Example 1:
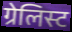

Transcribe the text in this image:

ग्रेलिस्ट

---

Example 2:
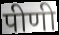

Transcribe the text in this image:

पीणी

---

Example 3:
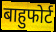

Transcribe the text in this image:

बाहुफोर्ट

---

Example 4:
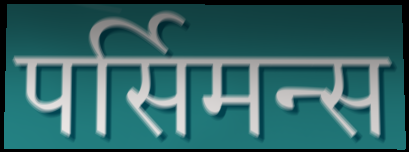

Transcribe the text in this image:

पर्सिमन्स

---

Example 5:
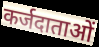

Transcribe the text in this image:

कर्जदाताओं